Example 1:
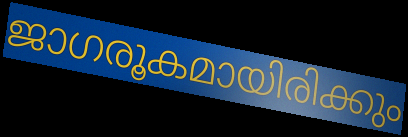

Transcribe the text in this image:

ജാഗരൂകമായിരിക്കും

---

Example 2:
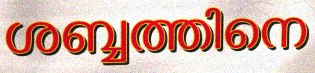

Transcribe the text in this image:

ശബ്ബത്തിനെ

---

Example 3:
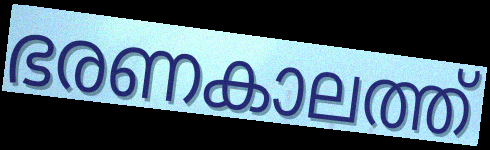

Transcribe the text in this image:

ഭരണകാലത്ത്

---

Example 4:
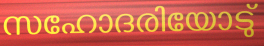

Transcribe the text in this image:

സഹോദരിയോടു്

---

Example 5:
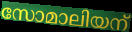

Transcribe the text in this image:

സോമാലിയന്